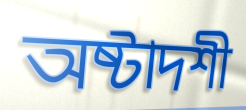
অষ্টাদশী